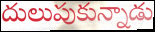
దులుపుకున్నాడు